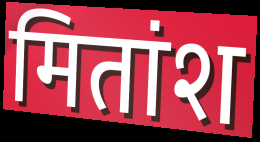
मितांश